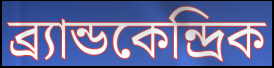
ব্র্যান্ডকেন্দ্রিক